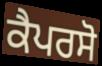
ਕੈਪਰਸੋ